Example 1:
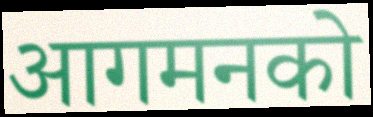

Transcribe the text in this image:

आगमनको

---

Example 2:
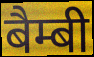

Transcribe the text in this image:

बैम्बी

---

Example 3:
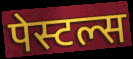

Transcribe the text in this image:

पेस्टल्स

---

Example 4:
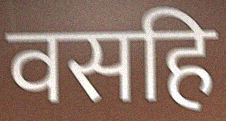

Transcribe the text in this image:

वसहि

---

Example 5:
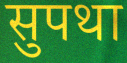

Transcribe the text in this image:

सुपथा